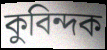
কুবিন্দক